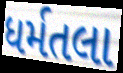
ધર્મતલા